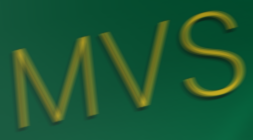
MVS